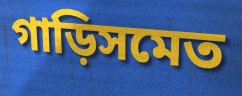
গাড়িসমেত